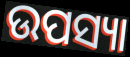
ଉପସ୍ୟା